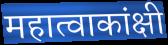
महात्वाकांक्षी